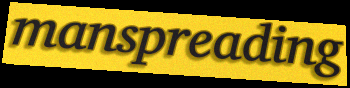
manspreading